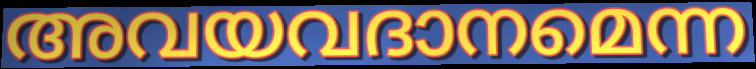
അവയവദാനമെന്ന